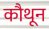
कौथून